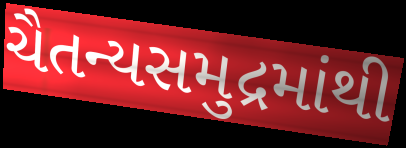
ચૈતન્યસમુદ્રમાંથી